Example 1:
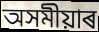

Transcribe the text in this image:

অসমীয়াৰ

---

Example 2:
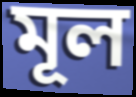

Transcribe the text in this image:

মূল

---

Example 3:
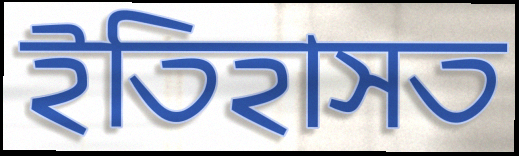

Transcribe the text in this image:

ইতিহাসত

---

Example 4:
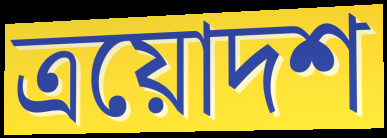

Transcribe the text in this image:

ত্ৰয়োদশ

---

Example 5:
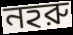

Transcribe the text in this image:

নহৰু